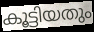
കൂട്ടിയതും